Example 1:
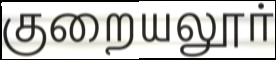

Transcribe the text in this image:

குறையலூர்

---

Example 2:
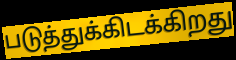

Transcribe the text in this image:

படுத்துக்கிடக்கிறது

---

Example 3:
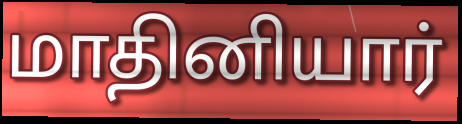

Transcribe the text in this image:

மாதினியார்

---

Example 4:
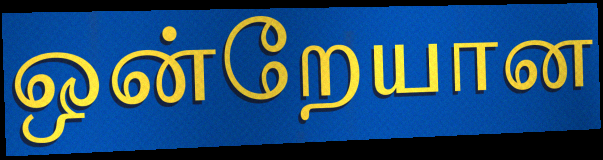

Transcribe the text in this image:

ஒன்றேயான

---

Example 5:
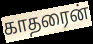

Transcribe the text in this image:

காதரைன்